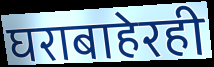
घराबाहेरही